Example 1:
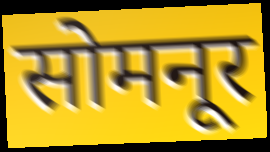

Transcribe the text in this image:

सोमनूर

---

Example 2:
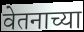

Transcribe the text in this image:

वेतनाच्या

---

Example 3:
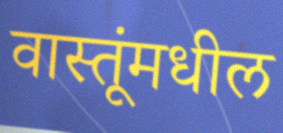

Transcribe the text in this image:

वास्तूंमधील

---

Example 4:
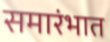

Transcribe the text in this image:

समारंभात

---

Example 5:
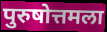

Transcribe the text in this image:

पुरुषोत्तमला